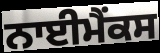
ਨਾਈਮੈਂਕਸ